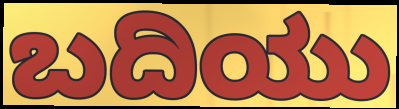
ಬದಿಯು